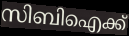
സിബിഐക്ക്